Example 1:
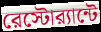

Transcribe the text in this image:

রেস্টোর‍্যান্টে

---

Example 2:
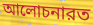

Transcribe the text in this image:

আলোচনারত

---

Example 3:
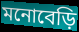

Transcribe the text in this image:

মনোবেড়ি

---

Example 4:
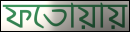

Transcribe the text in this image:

ফতোয়ায়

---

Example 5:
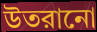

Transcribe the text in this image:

উতরানো